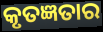
କୃତଜ୍ଞତାର